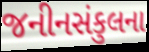
જનીનસંકુલના